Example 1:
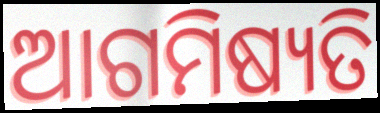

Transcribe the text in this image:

ଆଗମିଷ୍ୟତି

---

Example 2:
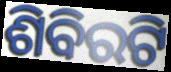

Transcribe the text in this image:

ଶିବିରଟି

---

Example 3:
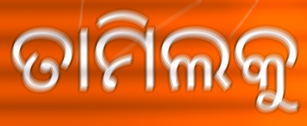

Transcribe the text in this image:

ତାମିଲକୁ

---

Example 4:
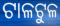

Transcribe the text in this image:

ଟାଳଟୁଳ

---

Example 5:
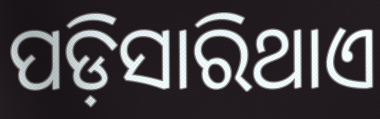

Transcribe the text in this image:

ପଡ଼ିସାରିଥାଏ